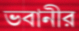
ভবানীর